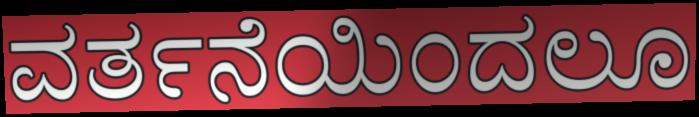
ವರ್ತನೆಯಿಂದಲೂ